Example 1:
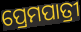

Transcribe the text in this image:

ପ୍ରେମପାତ୍ରୀ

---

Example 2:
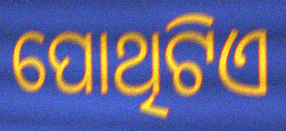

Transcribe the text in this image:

ପୋଥିଟିଏ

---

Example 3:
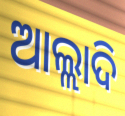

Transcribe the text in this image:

ଆଲ୍ଲାଦି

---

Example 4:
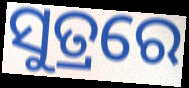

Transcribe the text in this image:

ସୁତ୍ରରେ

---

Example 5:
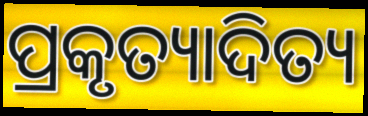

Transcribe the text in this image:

ପ୍ରକୃତ୍ୟାଦିତ୍ୟ